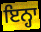
ਇਨ੍ਹਾ